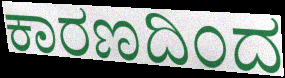
ಕಾರಣದಿಂದ